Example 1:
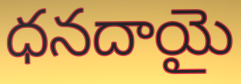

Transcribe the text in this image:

ధనదాయై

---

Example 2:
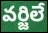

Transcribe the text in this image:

వర్జిలే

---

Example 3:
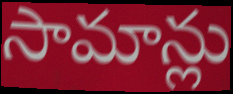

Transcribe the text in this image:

సామాన్లు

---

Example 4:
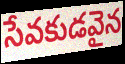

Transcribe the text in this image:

సేవకుడవైన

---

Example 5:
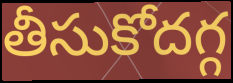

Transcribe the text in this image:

తీసుకోదగ్గ